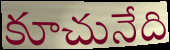
కూచునేది